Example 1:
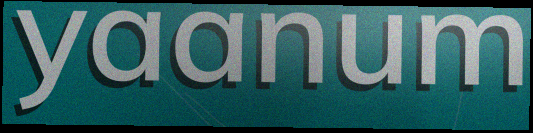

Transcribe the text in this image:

yaanum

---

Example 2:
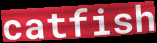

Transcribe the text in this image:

catfish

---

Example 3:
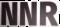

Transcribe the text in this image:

NNR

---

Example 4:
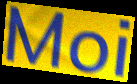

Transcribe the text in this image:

Moi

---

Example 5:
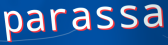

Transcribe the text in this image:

parassa